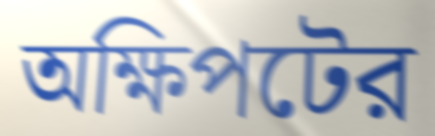
অক্ষিপটের